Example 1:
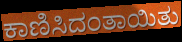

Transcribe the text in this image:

ಕಾಣಿಸಿದಂತಾಯಿತು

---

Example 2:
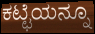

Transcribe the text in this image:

ಕಟ್ಟೆಯನ್ನೂ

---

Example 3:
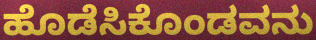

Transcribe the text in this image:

ಹೊಡೆಸಿಕೊಂಡವನು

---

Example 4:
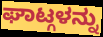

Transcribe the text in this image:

ಘಾಟ್ಗಳನ್ನು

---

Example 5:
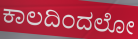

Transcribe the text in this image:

ಕಾಲದಿಂದಲೋ